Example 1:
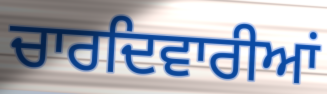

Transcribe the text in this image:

ਚਾਰਦਿਵਾਰੀਆਂ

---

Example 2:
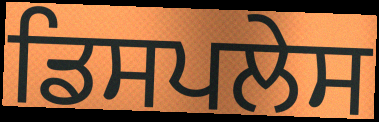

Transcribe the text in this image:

ਡਿਸਪਲੇਸ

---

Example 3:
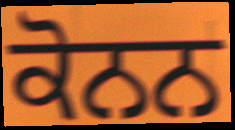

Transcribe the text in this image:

ਕੋਨਨ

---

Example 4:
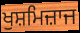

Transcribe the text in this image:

ਖੁਸ਼ਮਿਜ਼ਾਜ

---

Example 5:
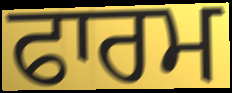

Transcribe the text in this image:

ਫਾਰਮ